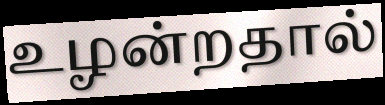
உழன்றதால்